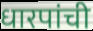
धारपांची